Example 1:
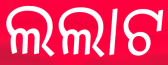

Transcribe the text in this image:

ଲଲାଟ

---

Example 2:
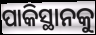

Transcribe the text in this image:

ପାକିସ୍ଥାନକୁ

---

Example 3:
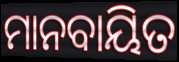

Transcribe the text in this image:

ମାନବାୟିତ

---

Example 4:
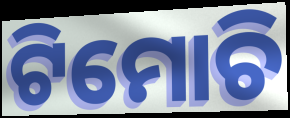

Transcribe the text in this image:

ଟିମୋଚି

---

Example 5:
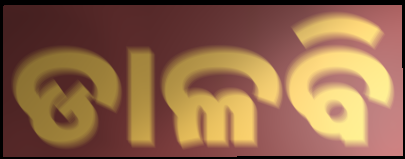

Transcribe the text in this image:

ଡାଳବି